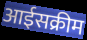
आईसक्रीम